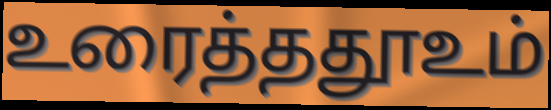
உரைத்ததூஉம்